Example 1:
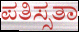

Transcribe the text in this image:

ಪತಿಸ್ಸತಾ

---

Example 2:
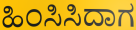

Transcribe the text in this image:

ಹಿಂಸಿಸಿದಾಗ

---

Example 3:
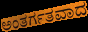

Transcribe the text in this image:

ಅಂತರ್ಗತವಾದ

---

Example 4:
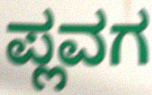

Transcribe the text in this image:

ಪ್ಲವಗ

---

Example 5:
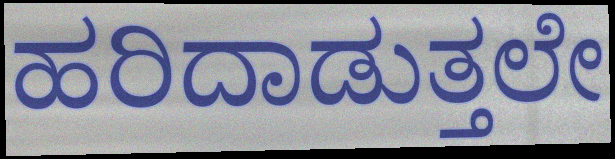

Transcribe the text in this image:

ಹರಿದಾಡುತ್ತಲೇ